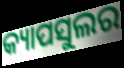
କ୍ୟାପସୁଲର